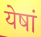
येषां